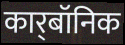
कार्‌बॉनिक